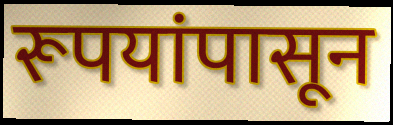
रूपयांपासून